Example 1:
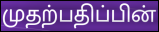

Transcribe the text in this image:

முதற்பதிப்பின்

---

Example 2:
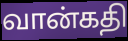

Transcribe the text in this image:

வான்கதி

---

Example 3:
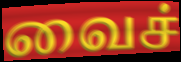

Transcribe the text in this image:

வைச்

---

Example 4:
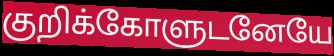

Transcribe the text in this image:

குறிக்கோளுடனேயே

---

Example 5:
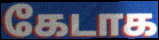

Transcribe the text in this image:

கேடாக